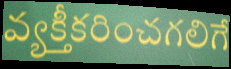
వ్యక్తీకరించగలిగే